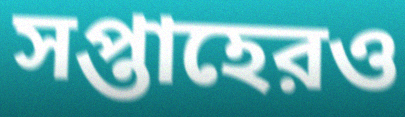
সপ্তাহেরও